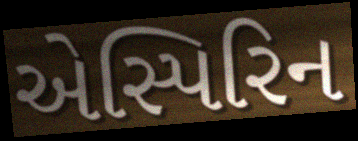
એસ્પિરિન